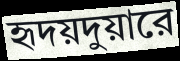
হৃদয়দুয়ারে